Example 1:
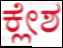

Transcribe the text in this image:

ಕ್ಲೇಶ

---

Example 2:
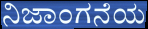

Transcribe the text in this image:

ನಿಜಾಂಗನೆಯ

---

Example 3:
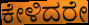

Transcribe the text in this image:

ಕೇಳಿದರೇ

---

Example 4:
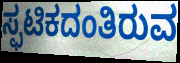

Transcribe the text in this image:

ಸ್ಫಟಿಕದಂತಿರುವ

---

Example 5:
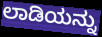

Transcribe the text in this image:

ಲಾಡಿಯನ್ನು